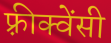
फ़्रीक्वेंसी